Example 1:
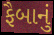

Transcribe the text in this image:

ફૈબાનું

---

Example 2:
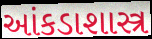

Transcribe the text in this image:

આંકડાશાસ્ત્ર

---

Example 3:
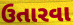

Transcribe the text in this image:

ઉતારવા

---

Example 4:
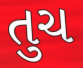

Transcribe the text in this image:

તુચ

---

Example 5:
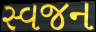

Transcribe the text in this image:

સ્વજન